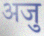
अजु